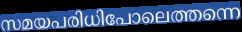
സമയപരിധിപോലെത്തന്നെ